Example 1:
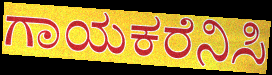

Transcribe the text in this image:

ಗಾಯಕರೆನಿಸಿ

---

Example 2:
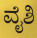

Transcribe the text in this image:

ವೈಶಿ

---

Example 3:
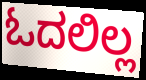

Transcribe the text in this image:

ಓದಲಿಲ್ಲ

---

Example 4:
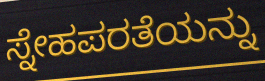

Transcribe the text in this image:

ಸ್ನೇಹಪರತೆಯನ್ನು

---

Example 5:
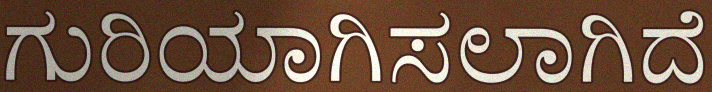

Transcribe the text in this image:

ಗುರಿಯಾಗಿಸಲಾಗಿದೆ